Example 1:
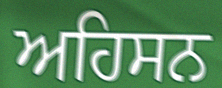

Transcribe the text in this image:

ਅਹਿਸਨ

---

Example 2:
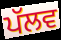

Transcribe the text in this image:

ਪੱਲਵ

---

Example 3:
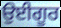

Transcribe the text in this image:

ਉਈਗੂਰ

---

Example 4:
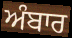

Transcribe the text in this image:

ਅੰਬਾਰ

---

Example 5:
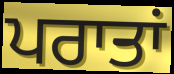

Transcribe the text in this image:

ਪਰਾਤਾਂ